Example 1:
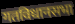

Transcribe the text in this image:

गतविधानसभा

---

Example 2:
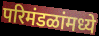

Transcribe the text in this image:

परिमंडळांमध्ये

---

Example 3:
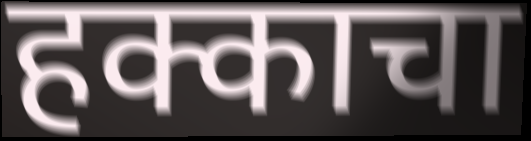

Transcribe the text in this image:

हक्काचा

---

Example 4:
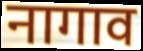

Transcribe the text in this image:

नागाव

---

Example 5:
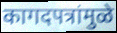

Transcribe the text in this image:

कागदपत्रांमुळे